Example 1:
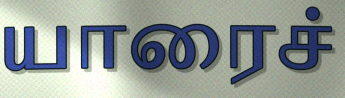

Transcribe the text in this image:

யாரைச்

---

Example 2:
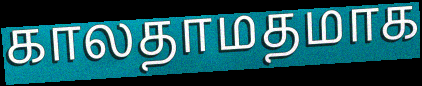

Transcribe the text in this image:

காலதாமதமாக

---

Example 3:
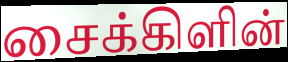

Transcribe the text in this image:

சைக்கிளின்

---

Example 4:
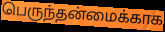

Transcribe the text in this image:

பெருந்தன்மைக்காக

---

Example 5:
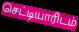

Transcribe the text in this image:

செட்டியாரிடம்